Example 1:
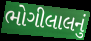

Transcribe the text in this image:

ભોગીલાલનું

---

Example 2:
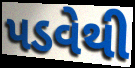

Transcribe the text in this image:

પડવેથી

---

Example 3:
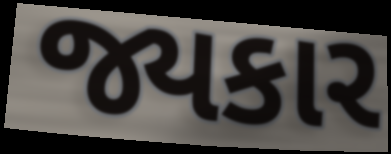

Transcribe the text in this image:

જ્યકાર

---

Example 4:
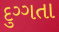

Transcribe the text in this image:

દુગ્ગતા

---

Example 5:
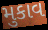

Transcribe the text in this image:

મુકાવ